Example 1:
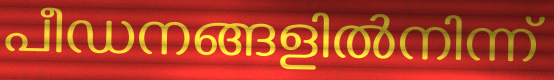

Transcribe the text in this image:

പീഡനങ്ങളിൽനിന്ന്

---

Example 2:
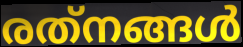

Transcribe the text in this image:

രത്‌നങ്ങൾ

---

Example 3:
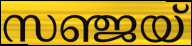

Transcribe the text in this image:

സഞ്ജയ്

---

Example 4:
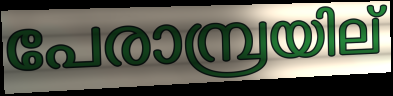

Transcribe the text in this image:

പേരാമ്പ്രയില്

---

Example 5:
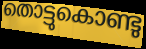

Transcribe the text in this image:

തൊട്ടുകൊണ്ടു